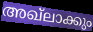
അഖ്ലാക്കും